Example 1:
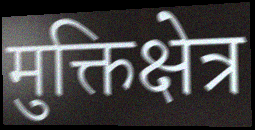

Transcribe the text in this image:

मुक्तिक्षेत्र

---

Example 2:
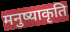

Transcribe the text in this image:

मनुष्याकृति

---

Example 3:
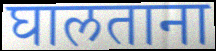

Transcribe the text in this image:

घालताना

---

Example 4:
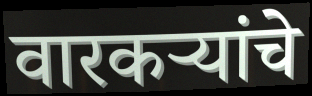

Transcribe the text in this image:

वारकऱ्यांचे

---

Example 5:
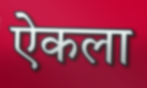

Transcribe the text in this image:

ऐकला